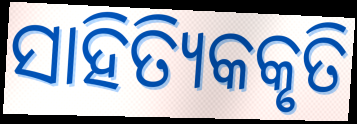
ସାହିତ୍ୟିକକୃତି